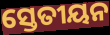
ସ୍ତେତୀୟନ